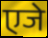
एजे